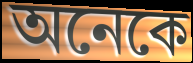
অনেকে